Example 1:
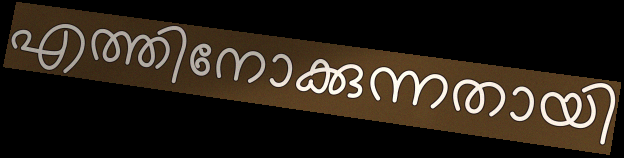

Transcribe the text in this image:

എത്തിനോക്കുന്നതായി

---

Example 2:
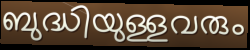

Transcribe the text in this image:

ബുദ്ധിയുള്ളവരും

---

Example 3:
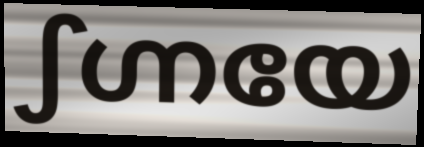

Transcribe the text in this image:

ഽഗ്നയേ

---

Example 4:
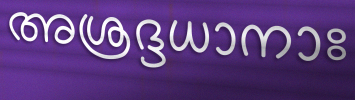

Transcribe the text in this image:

അശ്രദ്ദധാനാഃ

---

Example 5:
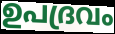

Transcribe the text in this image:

ഉപദ്രവം